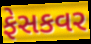
ફેસકવર